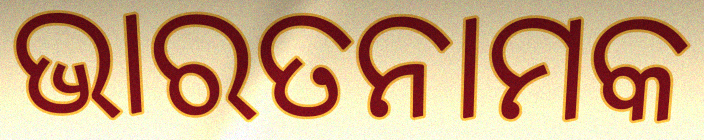
ଭାରତନାମକ